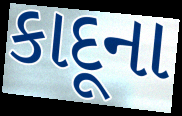
કાદૂના